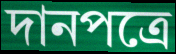
দানপত্রে